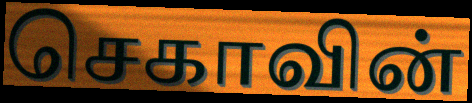
செகாவின்